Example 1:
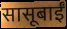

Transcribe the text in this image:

सासूबाईं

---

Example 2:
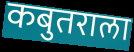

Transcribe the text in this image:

कबुतराला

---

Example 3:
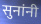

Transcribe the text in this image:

सुनांनी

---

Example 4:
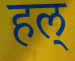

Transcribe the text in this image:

हल्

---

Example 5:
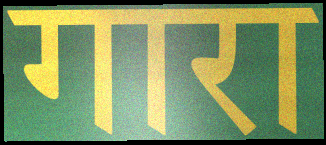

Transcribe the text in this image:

गारा